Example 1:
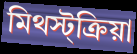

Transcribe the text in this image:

মিথস্ট্ক্রিয়া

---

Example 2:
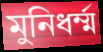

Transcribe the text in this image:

মুনিধর্ম্ম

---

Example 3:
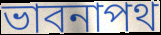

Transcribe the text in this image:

ভাবনাপথ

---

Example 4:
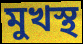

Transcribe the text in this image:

মুখস্থ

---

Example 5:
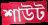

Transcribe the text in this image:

শাউট